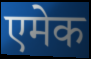
एमेक